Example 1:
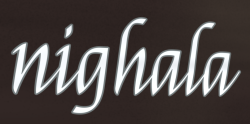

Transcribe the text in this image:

nighala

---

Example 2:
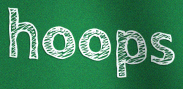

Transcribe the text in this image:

hoops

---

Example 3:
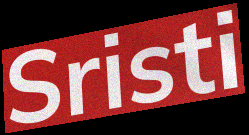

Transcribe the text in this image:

Sristi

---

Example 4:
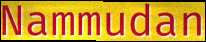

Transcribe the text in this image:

Nammudan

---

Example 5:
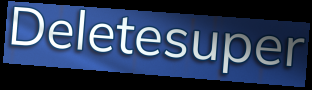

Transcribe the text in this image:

Deletesuper